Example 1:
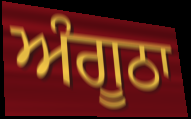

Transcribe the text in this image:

ਅੰਗੂਠਾ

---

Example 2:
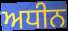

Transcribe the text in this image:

ਅਧੀਨ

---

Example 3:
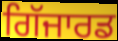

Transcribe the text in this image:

ਗਿੱਜਾਰਡ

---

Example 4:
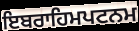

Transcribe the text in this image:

ਇਬਰਾਹਿਮਪਟਨਮ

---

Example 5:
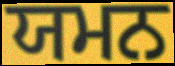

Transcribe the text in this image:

ਯਮਨ